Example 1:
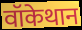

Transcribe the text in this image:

वॉकेथान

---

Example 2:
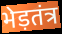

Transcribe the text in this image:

भेड़तंत्र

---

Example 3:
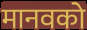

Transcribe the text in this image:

मानवको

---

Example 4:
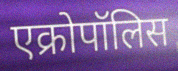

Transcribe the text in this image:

एक्रोपॉलिस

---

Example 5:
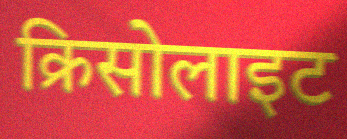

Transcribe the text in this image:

क्रिसोलाइट